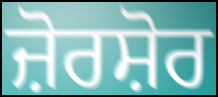
ਜ਼ੋਰਸ਼ੋਰ